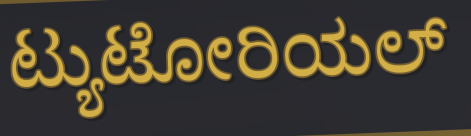
ಟ್ಯುಟೋರಿಯಲ್